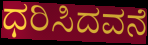
ಧರಿಸಿದವನೆ